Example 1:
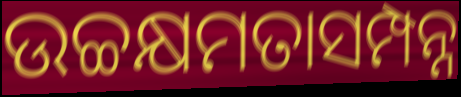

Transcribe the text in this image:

ଉଚ୍ଚକ୍ଷମତାସମ୍ପନ୍ନ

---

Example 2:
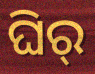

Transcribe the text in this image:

ଘିର୍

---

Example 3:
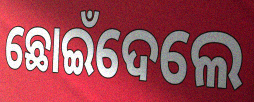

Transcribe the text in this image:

ଛୋଇଁଦେଲେ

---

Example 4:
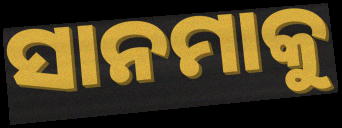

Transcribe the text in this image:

ସାନମାକୁ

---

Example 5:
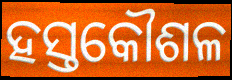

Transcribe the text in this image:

ହସ୍ତକୌଶଳ